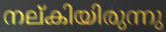
നല്കിയിരുന്നു